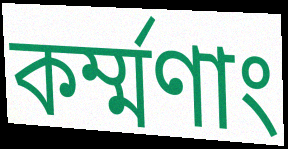
কর্ম্মণাং